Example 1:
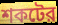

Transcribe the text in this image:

শকটের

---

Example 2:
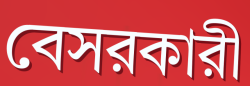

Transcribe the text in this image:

বেসরকারী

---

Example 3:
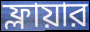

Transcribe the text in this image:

ফ্লায়ার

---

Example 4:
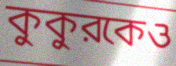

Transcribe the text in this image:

কুকুরকেও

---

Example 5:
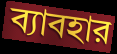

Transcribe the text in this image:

ব্যাবহার